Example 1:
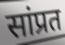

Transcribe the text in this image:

सांप्रत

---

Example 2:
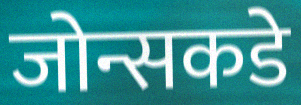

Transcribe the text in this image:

जोन्सकडे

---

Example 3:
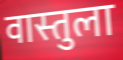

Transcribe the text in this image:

वास्तुला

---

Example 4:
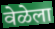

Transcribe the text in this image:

वेळेला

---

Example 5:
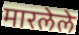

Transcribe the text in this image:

मारलेले